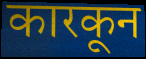
कारकून